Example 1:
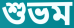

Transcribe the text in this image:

শুভম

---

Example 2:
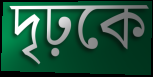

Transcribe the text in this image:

দৃঢ়কে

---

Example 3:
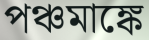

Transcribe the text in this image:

পঞ্চমাঙ্কে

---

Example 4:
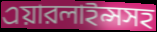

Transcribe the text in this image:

এয়ারলাইন্সসহ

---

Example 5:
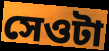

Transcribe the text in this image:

সেওটা